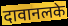
दावानलके